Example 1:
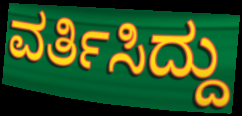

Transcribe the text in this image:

ವರ್ತಿಸಿದ್ದು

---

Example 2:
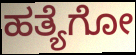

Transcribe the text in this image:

ಹತ್ಯೆಗೋ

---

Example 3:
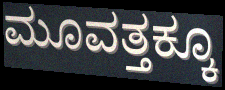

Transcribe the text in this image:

ಮೂವತ್ತಕ್ಕೂ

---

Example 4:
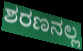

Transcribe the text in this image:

ಶರಣನಲ್ಲ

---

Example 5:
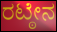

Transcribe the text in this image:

ರಟ್ಠೇನ